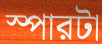
স্পারটা